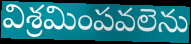
విశ్రమింపవలెను